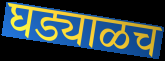
घड्याळच